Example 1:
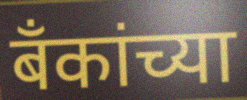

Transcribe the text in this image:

बॅंकांच्या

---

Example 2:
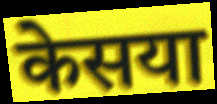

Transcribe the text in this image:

केसया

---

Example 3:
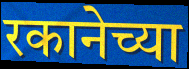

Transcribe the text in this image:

रकानेच्या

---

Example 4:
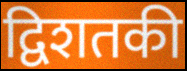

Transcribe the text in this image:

द्विशतकी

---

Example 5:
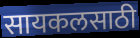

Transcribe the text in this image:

सायकलसाठी